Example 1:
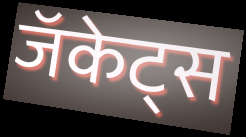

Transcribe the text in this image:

जॅकेट्स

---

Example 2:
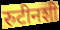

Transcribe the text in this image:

रुटीनशी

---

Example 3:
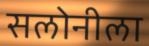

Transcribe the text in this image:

सलोनीला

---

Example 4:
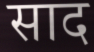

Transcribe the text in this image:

साद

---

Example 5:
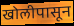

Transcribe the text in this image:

खोलीपासून